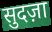
सुदज़ा